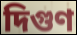
দিগুণ